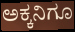
ಅಕ್ಕನಿಗೂ